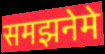
समझनेमे